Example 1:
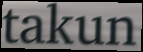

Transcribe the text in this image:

takun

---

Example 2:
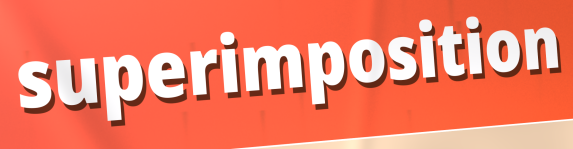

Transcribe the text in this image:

superimposition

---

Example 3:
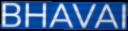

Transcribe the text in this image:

BHAVAI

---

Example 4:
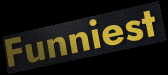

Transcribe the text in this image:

Funniest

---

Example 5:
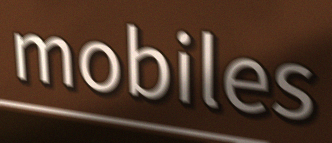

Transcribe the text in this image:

mobiles